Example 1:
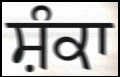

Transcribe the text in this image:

ਸ਼ੰਕਾ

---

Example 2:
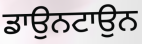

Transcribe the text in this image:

ਡਾਉਨਟਾਉਨ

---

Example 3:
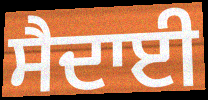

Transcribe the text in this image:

ਸੈਦਾਈ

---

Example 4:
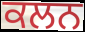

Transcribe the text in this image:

ਕਲਨ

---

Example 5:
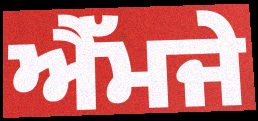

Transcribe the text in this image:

ਐੱਮਜੇ